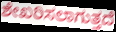
ಶೇಖರಿಸಲಾಗುತ್ತದೆ